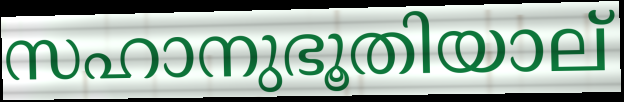
സഹാനുഭൂതിയാല്